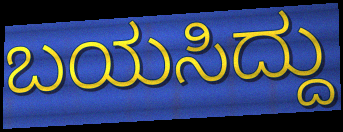
ಬಯಸಿದ್ದು